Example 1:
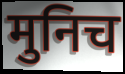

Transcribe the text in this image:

मुनिच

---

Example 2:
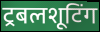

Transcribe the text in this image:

ट्रबलशूटिंग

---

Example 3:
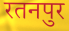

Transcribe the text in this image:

रतनपुर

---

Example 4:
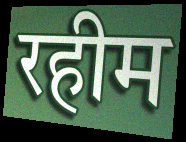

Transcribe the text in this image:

रहीम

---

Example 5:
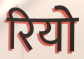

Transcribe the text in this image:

रियो